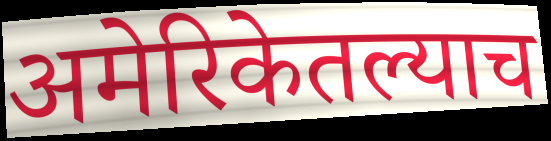
अमेरिकेतल्याच